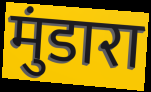
मुंडारा